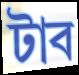
টাব